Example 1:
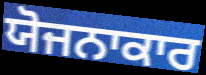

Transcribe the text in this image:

ਯੋਜਨਾਕਾਰ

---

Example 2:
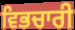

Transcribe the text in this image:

ਵਿਭਚਾਰੀ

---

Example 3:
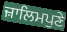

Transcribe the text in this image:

ਜ਼ਾਲਿਮਪੁਣੇ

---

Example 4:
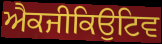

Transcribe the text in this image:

ਐਕਜੀਕਿਉਟਿਵ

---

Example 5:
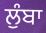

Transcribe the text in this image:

ਲੁੰਬਾ